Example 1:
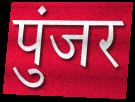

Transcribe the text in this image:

पुंजर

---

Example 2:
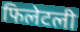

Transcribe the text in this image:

फिलेटली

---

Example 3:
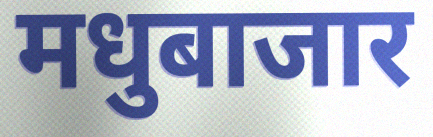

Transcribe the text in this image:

मधुबाजार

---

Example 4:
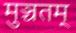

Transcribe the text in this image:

मुञ्चतम्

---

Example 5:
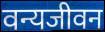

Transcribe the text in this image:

वन्यजीवन